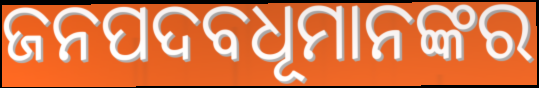
ଜନପଦବଧୂମାନଙ୍କର